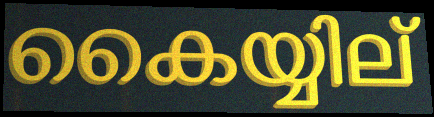
കൈയ്യില്